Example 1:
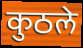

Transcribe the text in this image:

कुठले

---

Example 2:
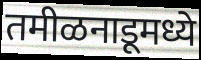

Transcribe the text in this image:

तमीळनाडूमध्ये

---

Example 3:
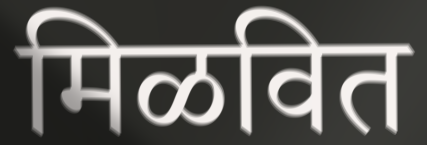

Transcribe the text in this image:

मिळवित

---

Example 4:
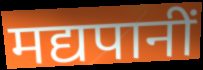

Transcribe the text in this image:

मद्यपानीं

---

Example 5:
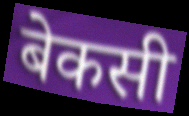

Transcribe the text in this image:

बेकसी